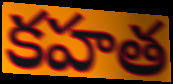
కహత